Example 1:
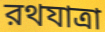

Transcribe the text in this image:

রথযাত্রা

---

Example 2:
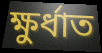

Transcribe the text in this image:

ক্ষুর্ধাত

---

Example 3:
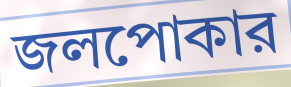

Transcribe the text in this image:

জলপোকার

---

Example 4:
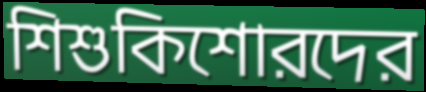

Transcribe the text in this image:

শিশুকিশোরদের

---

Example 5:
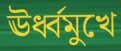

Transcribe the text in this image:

ঊর্ধ্বমুখে